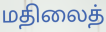
மதிலைத்